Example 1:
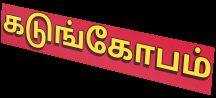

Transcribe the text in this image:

கடுங்கோபம்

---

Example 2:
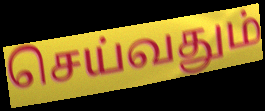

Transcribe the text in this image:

செய்வதும்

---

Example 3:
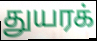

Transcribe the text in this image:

துயரக்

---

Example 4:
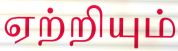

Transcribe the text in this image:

ஏற்றியும்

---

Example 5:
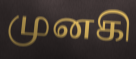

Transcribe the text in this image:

முனகி